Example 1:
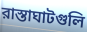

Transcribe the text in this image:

রাস্তাঘাটগুলি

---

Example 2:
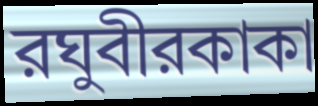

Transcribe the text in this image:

রঘুবীরকাকা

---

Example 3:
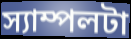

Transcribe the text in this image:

স্যাম্পলটা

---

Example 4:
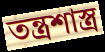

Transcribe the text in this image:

তন্ত্রশাস্ত্র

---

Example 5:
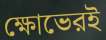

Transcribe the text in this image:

ক্ষোভেরই